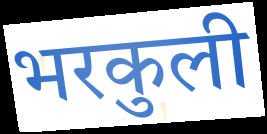
भरकुली